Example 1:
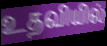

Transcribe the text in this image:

உதவியில்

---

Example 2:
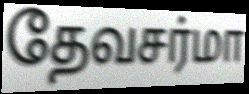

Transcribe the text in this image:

தேவசர்மா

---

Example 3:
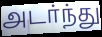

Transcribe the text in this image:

அடர்ந்து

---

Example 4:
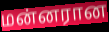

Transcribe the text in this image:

மன்னரான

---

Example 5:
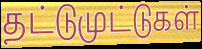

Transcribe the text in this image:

தட்டுமுட்டுகள்